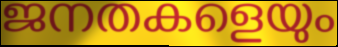
ജനതകളെയും